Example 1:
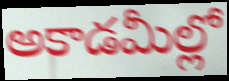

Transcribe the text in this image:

అకాడమీల్లో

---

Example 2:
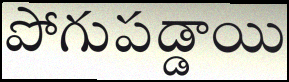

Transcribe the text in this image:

పోగుపడ్డాయి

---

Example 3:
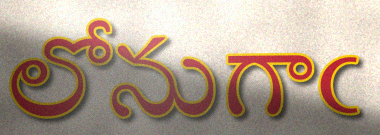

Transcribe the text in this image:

లోనుగాఁ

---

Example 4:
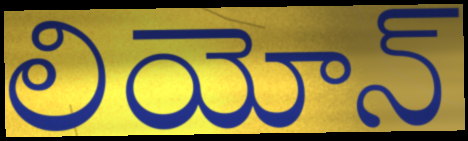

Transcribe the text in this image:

లియోన్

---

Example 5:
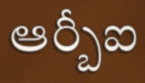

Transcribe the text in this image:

ఆర్బీఐ